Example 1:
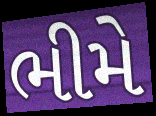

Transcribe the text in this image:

ભીમે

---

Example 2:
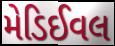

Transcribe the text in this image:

મેડિઈવલ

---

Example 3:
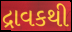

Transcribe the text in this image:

દ્રાવકથી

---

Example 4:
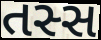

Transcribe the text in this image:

તસ્સ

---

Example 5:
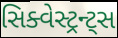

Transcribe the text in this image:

સિક્વેસ્ટ્રન્ટ્સ